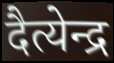
दैत्येन्द्र